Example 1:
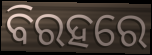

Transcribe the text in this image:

ବିରହରେ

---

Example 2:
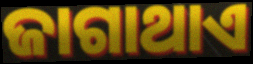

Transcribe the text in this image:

ଜାଗାଥାଏ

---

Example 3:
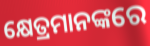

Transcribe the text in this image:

କ୍ଷେତ୍ରମାନଙ୍କରେ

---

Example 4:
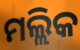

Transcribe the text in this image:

ମଲ୍ଲିକ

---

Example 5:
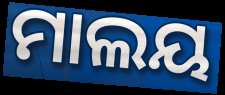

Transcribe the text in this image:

ମାଲୟ